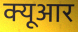
क्यूआर